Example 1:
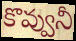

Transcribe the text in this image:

కొవ్వునీ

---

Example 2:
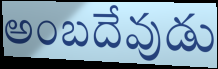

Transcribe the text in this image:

అంబదేవుడు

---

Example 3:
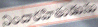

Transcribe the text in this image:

నిందారహితుడును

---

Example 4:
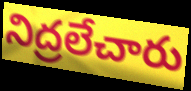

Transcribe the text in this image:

నిద్రలేచారు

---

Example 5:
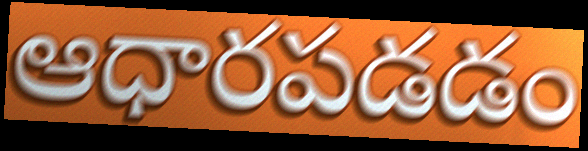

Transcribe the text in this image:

ఆధారపడడం